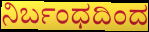
ನಿರ್ಬಂಧದಿಂದ